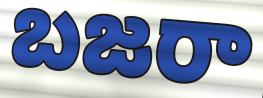
బజరా